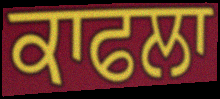
ਕਾਫਲਾ